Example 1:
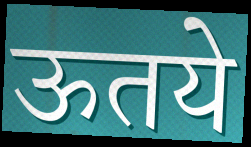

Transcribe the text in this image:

ऊतये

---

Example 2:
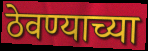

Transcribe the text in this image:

ठेवण्याच्या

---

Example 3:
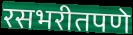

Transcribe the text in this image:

रसभरीतपणे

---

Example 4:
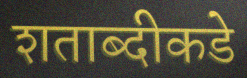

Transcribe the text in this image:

शताब्दीकडे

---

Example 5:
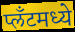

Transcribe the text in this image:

प्लँटमध्ये